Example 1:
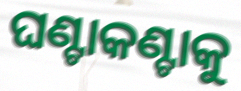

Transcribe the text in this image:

ଘଣ୍ଟାକଣ୍ଟାକୁ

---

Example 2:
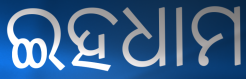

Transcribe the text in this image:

ଇହଧାମ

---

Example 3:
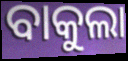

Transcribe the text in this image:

ବାକୁଲା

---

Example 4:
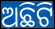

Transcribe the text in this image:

ଅଛିଟି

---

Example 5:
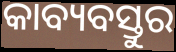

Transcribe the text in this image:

କାବ୍ୟବସ୍ତୁର